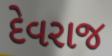
દેવરાજ